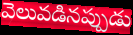
వెలువడినప్పుడు